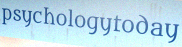
psychologytoday